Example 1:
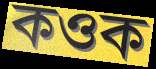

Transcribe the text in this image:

কওক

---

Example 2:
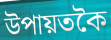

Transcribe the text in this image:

উপায়তকৈ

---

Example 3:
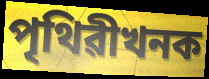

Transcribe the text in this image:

পৃথিৱীখনক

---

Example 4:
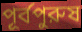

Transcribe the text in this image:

পূৰ্বপুৰুষ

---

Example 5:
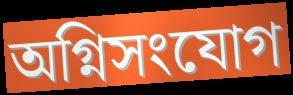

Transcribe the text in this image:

অগ্নিসংযোগ